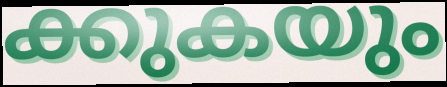
ക്കുകയും